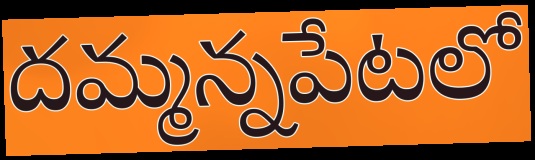
దమ్మన్నపేటలో